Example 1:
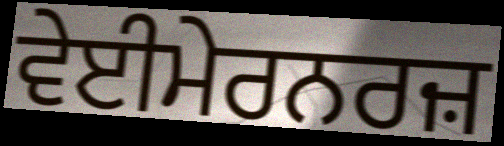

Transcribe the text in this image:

ਵੇਈਮੇਰਨਰਜ਼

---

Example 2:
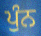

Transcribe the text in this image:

ਪੁੰਨ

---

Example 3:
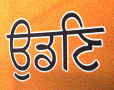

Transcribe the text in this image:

ਉਡਣਿ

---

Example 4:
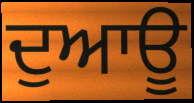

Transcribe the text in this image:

ਦੁਆਊ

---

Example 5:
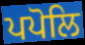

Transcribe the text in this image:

ਪਪੋਲਿ